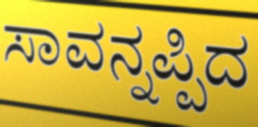
ಸಾವನ್ನಪ್ಪಿದ